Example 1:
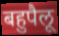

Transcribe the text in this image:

बहुपैलू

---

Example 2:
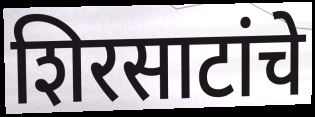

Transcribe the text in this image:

शिरसाटांचे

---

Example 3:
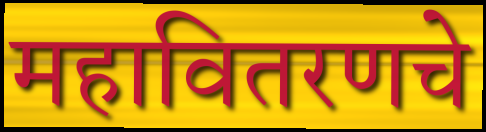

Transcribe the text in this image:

महावितरणचे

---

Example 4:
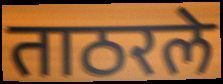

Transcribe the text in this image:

ताठरले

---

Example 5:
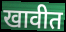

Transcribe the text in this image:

खावीत